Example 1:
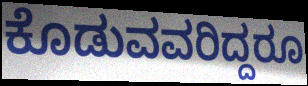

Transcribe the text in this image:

ಕೊಡುವವರಿದ್ದರೂ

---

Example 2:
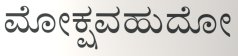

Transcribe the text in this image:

ಮೋಕ್ಷವಹುದೋ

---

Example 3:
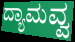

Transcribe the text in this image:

ದ್ಯಾಮವ್ವ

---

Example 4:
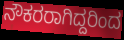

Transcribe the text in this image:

ನೌಕರರಾಗಿದ್ದರಿಂದ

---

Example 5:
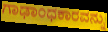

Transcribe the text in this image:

ಗಾಢಾಂಧಕಾರವನ್ನು